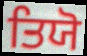
ਤਿਯੋ